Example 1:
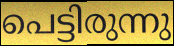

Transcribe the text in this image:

പെട്ടിരുന്നു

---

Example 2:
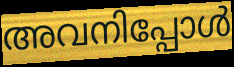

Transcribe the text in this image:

അവനിപ്പോൾ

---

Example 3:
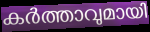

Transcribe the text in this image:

കർത്താവുമായി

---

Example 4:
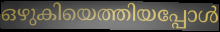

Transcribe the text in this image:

ഒഴുകിയെത്തിയപ്പോൾ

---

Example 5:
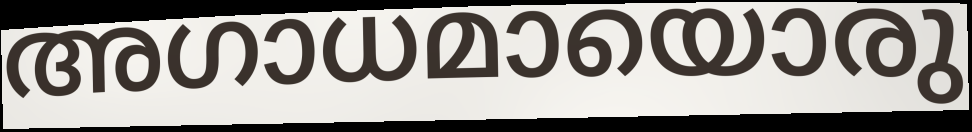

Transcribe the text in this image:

അഗാധമായൊരു